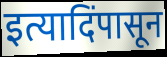
इत्यादिंपासून